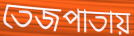
তেজপাতায়